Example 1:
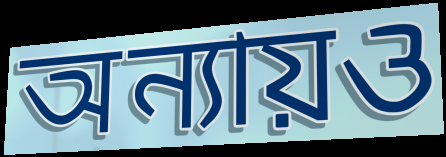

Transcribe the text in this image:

অন্যায়ও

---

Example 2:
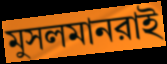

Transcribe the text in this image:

মুসলমানরাই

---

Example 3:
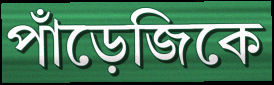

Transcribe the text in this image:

পাঁড়েজিকে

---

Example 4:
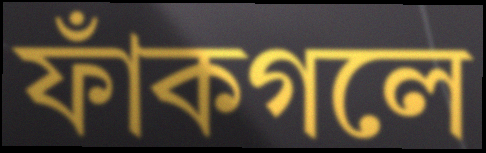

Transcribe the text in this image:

ফাঁকগলে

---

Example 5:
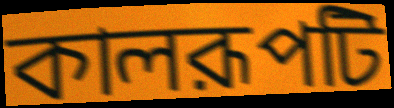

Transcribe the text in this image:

কালরূপটি